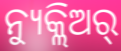
ନ୍ୟୁକ୍ଲିଅର୍